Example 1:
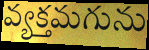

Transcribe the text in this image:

వ్యక్తమగును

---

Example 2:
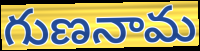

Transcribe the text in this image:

గుణనామ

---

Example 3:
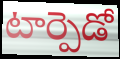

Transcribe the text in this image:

టార్పెడో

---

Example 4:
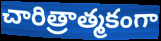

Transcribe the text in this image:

చారిత్రాత్మకంగా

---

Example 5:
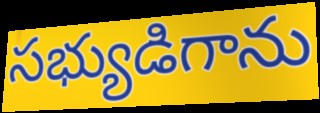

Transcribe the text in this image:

సభ్యుడిగాను